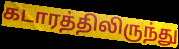
கடாரத்திலிருந்து